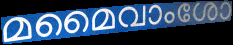
മമൈവാംശോ